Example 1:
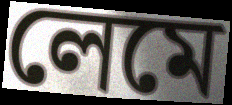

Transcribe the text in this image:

লেমে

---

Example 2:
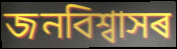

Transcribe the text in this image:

জনবিশ্বাসৰ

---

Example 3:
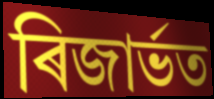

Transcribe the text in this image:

ৰিজাৰ্ভত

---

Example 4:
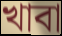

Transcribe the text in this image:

খাবা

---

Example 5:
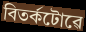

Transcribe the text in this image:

বিতৰ্কটোৱে